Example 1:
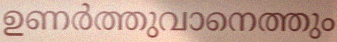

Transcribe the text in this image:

ഉണർത്തുവാനെത്തും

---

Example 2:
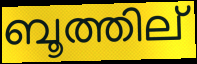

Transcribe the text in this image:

ബൂത്തില്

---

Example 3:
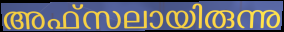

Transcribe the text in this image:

അഫ്സലായിരുന്നു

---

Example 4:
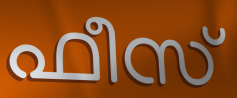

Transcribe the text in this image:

ഫീസ്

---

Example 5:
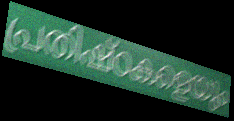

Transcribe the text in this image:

പ്രതിഷ്ഠകളെയും